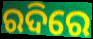
ରଦିରେ